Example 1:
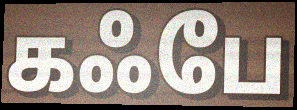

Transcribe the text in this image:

கஃபே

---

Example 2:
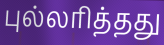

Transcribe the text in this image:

புல்லரித்தது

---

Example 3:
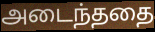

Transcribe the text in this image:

அடைந்ததை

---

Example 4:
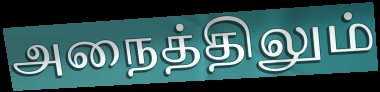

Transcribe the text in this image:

அநைத்திலும்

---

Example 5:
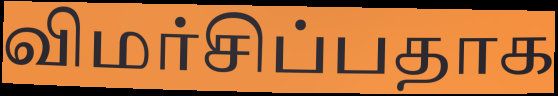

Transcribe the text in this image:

விமர்சிப்பதாக